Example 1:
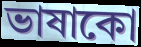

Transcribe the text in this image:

ভাষাকো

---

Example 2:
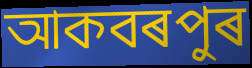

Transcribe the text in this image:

আকবৰপুৰ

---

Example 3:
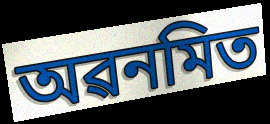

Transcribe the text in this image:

অৱনমিত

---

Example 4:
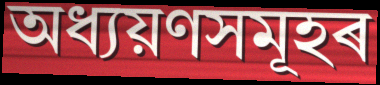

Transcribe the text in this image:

অধ্যয়ণসমূহৰ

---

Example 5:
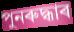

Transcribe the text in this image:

পুনৰুদ্ধাৰ